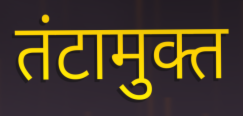
तंटामुक्त